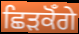
ਛਿੜਕੋਁਗੇ